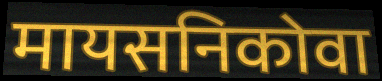
मायसनिकोवा